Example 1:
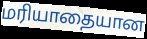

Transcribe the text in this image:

மரியாதையான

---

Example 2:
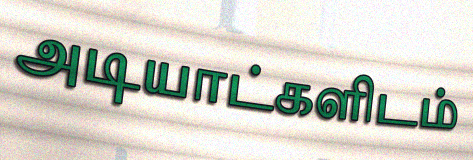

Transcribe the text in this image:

அடியாட்களிடம்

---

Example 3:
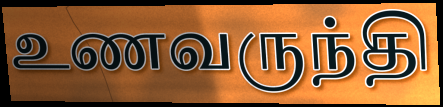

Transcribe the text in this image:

உணவருந்தி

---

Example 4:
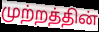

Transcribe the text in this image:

முற்றத்தின்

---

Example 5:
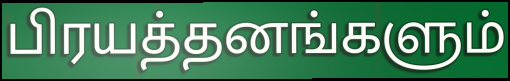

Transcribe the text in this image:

பிரயத்தனங்களும்